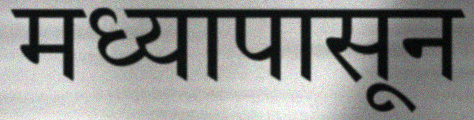
मध्यापासून